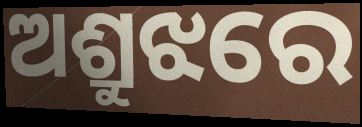
ଅଶ୍ରୁଝରେ